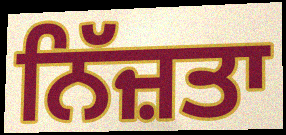
ਨਿੱਜ਼ਤਾ